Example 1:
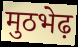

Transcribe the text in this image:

मुठभेढ़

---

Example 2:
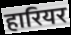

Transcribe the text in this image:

हारियर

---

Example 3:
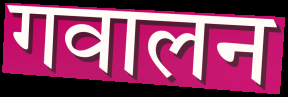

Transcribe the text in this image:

गवालन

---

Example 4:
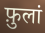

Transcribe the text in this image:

फ़ुलां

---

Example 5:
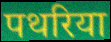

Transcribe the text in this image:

पथरिया